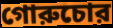
গোরুচোর